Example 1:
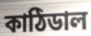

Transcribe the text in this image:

কাঠিডাল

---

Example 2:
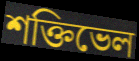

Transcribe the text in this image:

শক্তিভেল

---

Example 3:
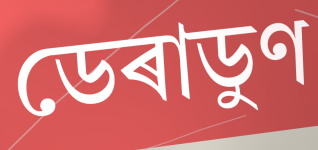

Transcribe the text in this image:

ডেৰাডুণ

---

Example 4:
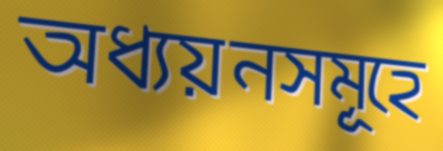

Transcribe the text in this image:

অধ্যয়নসমূহে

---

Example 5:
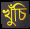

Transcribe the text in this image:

খুঁচি